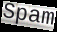
Spam